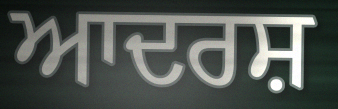
ਆਦਰਸ਼